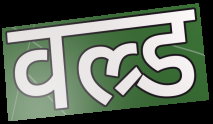
वल्र्ड